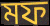
মফ